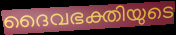
ദൈവഭക്തിയുടെ